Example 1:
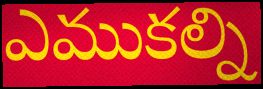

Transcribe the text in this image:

ఎముకల్ని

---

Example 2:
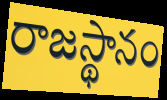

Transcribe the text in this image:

రాజస్థానం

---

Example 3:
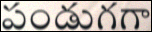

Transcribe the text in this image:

పండుగగా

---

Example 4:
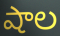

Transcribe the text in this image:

షాల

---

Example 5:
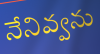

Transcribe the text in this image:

నేనివ్వను